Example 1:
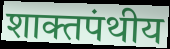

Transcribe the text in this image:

शाक्तपंथीय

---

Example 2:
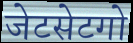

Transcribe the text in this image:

जेटसेटगो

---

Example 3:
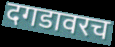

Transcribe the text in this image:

दगडावरच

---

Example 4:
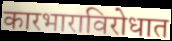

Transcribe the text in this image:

कारभाराविरोधात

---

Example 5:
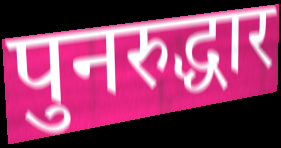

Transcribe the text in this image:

पुनरुद्धार